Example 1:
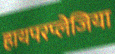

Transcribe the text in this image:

हायपरप्लेजिया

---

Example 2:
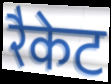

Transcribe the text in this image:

रैकेट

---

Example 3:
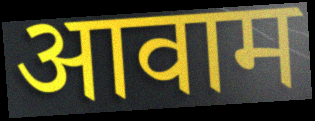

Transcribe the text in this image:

आवाम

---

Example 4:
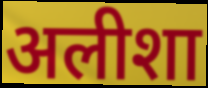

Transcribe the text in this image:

अलीशा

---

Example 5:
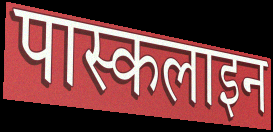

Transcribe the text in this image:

पास्कलाइन